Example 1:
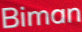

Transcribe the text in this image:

Biman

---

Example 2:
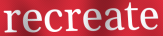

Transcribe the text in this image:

recreate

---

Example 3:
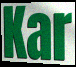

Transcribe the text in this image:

Kar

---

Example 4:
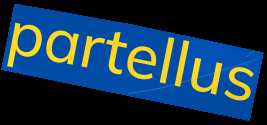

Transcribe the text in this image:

partellus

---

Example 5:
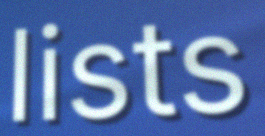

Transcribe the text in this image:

lists